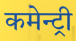
कमेन्ट्री